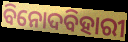
ବିନୋଦବିହାରୀ